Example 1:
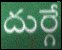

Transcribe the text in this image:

దుర్గే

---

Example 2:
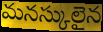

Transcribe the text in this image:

మనస్కులైన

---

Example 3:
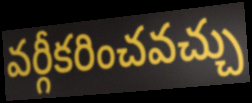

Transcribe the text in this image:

వర్గీకరించవచ్చు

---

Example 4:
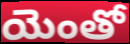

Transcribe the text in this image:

యెంతో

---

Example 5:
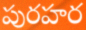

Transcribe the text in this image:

పురహర